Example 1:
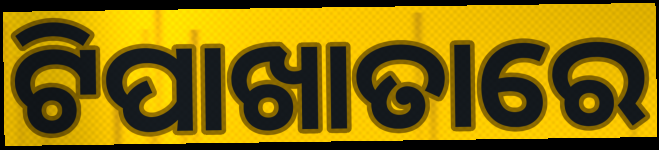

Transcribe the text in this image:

ଟିପାଖାତାରେ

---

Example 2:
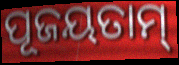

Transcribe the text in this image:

ପୂଜୟତାମ୍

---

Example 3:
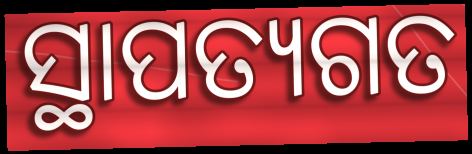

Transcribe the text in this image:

ସ୍ଥାପତ୍ୟଗତ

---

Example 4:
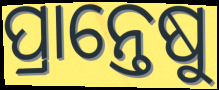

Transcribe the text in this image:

ପ୍ରାନ୍ତେଷୁ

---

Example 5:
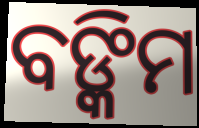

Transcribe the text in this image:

ବଙ୍କିମ